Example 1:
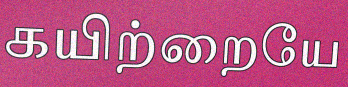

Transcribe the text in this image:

கயிற்றையே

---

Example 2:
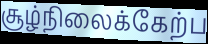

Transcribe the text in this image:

சூழ்நிலைக்கேற்ப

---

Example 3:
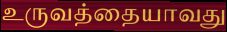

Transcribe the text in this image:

உருவத்தையாவது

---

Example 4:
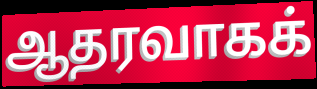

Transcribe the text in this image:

ஆதரவாகக்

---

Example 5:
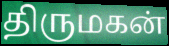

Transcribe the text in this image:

திருமகன்